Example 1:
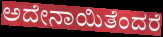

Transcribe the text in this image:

ಅದೇನಾಯಿತೆಂದರೆ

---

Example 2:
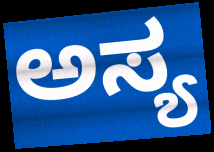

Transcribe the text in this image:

ಅಸ್ಯ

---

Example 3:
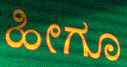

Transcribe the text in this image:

ಹೀಗೂ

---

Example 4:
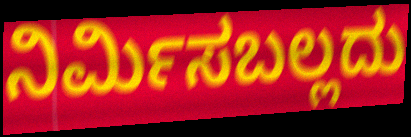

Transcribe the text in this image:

ನಿರ್ಮಿಸಬಲ್ಲದು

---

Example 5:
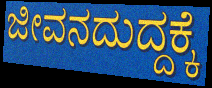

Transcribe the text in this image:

ಜೀವನದುದ್ದಕ್ಕೆ